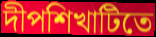
দীপশিখাটিতে